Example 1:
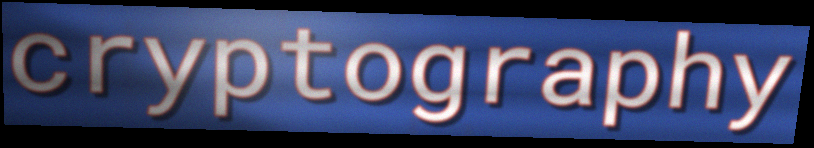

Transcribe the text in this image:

cryptography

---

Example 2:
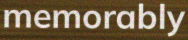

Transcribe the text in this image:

memorably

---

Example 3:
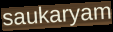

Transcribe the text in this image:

saukaryam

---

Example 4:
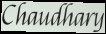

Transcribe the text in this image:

Chaudhary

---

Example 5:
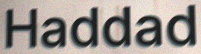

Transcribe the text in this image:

Haddad